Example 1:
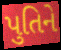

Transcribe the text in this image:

પુતિને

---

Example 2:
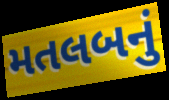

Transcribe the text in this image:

મતલબનું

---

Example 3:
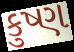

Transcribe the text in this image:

કુષ્ણ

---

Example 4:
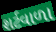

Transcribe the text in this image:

શર્ટવાળા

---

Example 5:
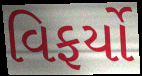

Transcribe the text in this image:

વિફર્યો